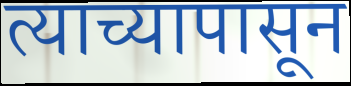
त्याच्यापासून